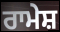
ਰਾਮੇਸ਼